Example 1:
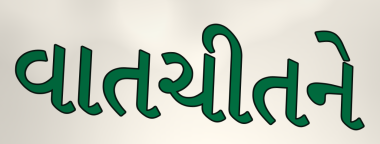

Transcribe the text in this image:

વાતચીતને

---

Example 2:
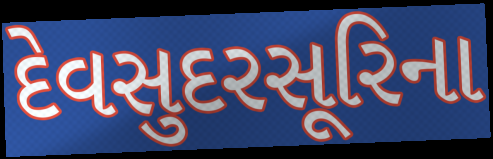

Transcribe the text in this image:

દેવસુદરસૂરિના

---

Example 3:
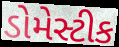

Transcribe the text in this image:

ડોમેસ્ટીક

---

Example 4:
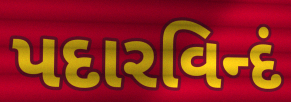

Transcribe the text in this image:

પદારવિન્દં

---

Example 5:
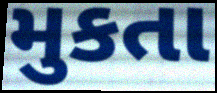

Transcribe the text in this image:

મુકતા